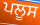
ਪਲੂਸ